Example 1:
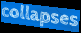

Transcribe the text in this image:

collapses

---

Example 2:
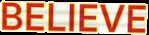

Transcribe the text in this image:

BELIEVE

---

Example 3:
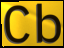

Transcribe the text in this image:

Cb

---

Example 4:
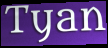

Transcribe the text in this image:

Tyan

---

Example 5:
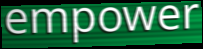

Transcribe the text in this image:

empower